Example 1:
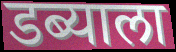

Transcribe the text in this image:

डब्याला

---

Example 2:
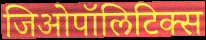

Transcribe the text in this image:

जिओपॉलिटिक्स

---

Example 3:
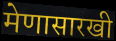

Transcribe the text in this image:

मेणासारखी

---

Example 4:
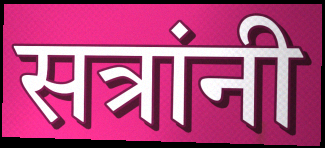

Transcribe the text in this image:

सत्रांनी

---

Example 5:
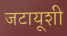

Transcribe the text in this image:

जटायूशी